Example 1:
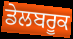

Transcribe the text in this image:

ਡੇਲਬਰੂਕ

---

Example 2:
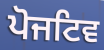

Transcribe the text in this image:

ਪੋਜਟਿਵ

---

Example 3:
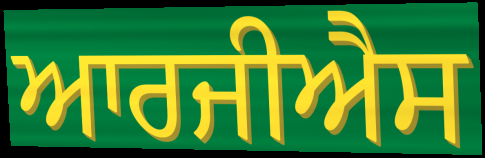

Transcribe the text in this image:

ਆਰਜੀਐਸ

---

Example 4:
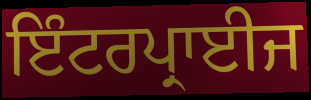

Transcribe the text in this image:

ਇੰਟਰਪ੍ਰਾਈਜ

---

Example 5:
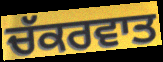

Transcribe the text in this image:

ਚੱਕਰਵਾਤ